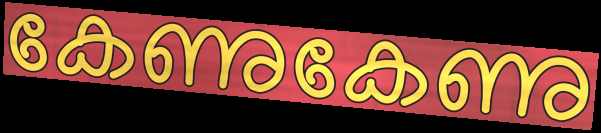
കേണുകേണു